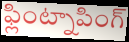
ఫ్లింట్నాపింగ్